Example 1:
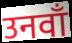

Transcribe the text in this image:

उनवाँ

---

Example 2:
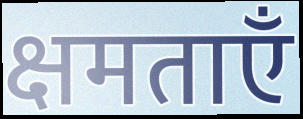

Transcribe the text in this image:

क्षमताएँ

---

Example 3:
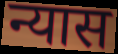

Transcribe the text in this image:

न्यास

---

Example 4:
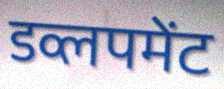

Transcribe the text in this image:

डव्लपमेंट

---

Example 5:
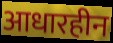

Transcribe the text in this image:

आधारहीन